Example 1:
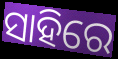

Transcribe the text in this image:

ସାହିରେ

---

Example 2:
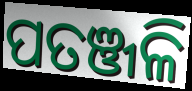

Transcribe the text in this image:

ପତଞ୍ଜଳି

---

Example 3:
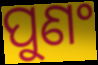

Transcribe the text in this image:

ପୁଣଂ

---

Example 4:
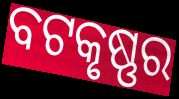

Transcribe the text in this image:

ବଟକୃଷ୍ଣର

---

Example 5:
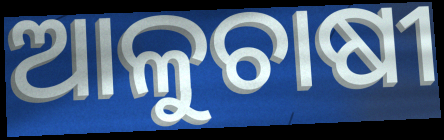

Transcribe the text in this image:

ଆଳୁଚାଷୀ